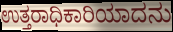
ಉತ್ತರಾಧಿಕಾರಿಯಾದನು